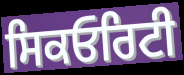
ਸਿਕਓਰਿਟੀ